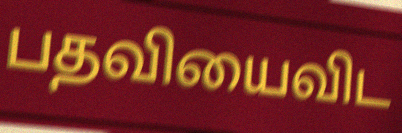
பதவியைவிட